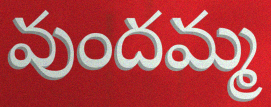
వుందమ్మ